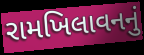
રામખિલાવનનું